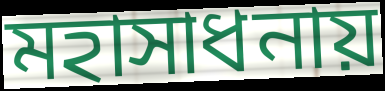
মহাসাধনায়